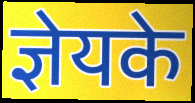
ज्ञेयके